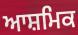
ਆਸ਼ਮਿਕ